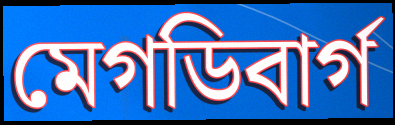
মেগডিবার্গ